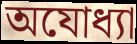
অযোধ্যা